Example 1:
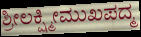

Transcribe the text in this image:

ಶ್ರೀಲಕ್ಷ್ಮೀಮುಖಪದ್ಮ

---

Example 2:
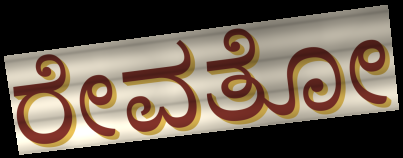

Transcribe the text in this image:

ರೇವತೋ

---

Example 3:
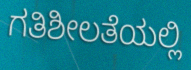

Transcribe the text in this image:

ಗತಿಶೀಲತೆಯಲ್ಲಿ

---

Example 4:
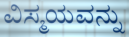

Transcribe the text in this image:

ವಿಸ್ಮಯವನ್ನು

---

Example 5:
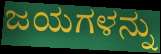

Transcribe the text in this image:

ಜಯಗಳನ್ನು